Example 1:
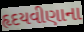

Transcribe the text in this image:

હૃદયવીણાના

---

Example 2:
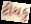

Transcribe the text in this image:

ટીચકુ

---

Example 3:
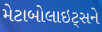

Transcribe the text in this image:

મેટાબોલાઇટ્સને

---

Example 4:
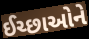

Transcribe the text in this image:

ઈચ્છાઓને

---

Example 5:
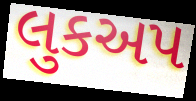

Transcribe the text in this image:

લુકઅપ